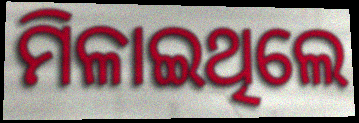
ମିଳାଇଥିଲେ